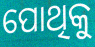
ପୋଥିକୁ